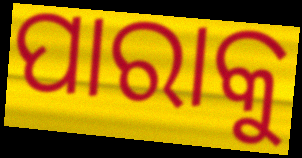
ପାରାକୁ